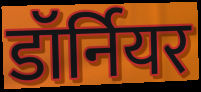
डॉर्नियर